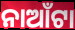
ନାଆଁଟା